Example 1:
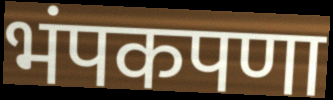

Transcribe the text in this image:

भंपकपणा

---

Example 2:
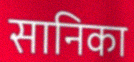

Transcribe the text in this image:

सानिका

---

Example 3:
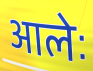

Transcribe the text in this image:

आलेः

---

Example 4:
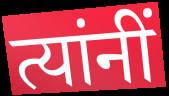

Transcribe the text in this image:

त्यांनीं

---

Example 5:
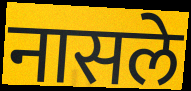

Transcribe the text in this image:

नासले